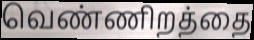
வெண்ணிறத்தை